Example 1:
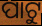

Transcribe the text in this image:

ପାଟୁ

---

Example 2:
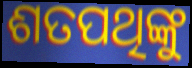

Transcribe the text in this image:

ଶତପଥିଙ୍କୁ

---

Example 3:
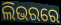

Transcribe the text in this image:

ଲିଭରରେ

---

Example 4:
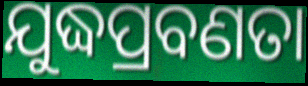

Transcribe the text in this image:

ଯୁଦ୍ଧପ୍ରବଣତା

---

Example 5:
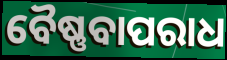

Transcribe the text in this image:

ବୈଷ୍ଣବାପରାଧ